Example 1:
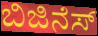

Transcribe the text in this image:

ಬಿಜಿನೆಸ್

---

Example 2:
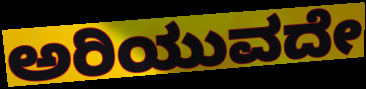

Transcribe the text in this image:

ಅರಿಯುವದೇ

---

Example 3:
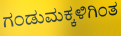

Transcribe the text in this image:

ಗಂಡುಮಕ್ಕಳಿಗಿಂತ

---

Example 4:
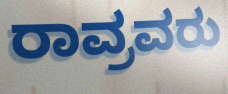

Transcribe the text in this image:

ರಾವ್ರವರು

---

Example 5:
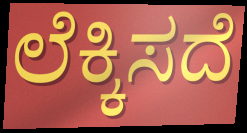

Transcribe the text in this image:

ಲೆಕ್ಕಿಸದೆ